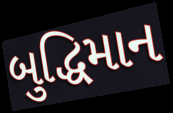
બુદ્ધિમાન